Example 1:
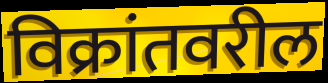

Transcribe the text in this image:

विक्रांतवरील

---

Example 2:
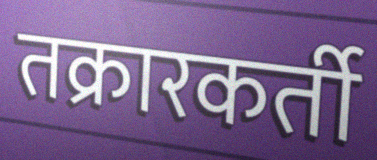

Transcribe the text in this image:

तक्रारकर्ती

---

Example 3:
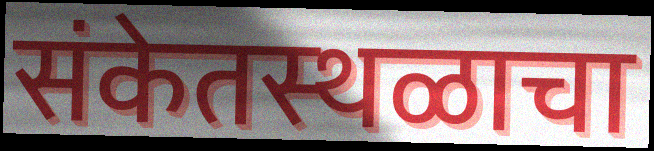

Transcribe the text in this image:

संकेतस्थळाचा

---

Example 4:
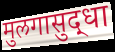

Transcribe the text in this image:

मुलगासुद्धा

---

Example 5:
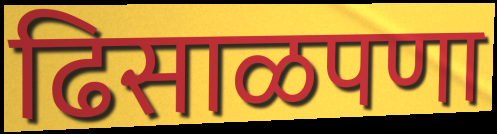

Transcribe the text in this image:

ढिसाळपणा